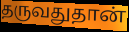
தருவதுதான்